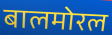
बालमोरल